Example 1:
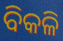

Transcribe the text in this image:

ବିକଳି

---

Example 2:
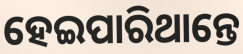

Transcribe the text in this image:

ହେଇପାରିଥାନ୍ତେ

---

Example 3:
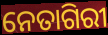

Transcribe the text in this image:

ନେତାଗିରୀ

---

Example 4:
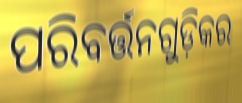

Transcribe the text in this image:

ପରିବର୍ତ୍ତନଗୁଡ଼ିକର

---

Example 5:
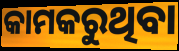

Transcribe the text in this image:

କାମକରୁଥିବା